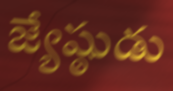
జ్యేష్ఠుడు